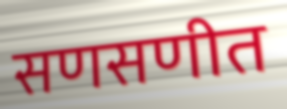
सणसणीत